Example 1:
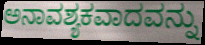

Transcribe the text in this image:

ಅನಾವಶ್ಯಕವಾದವನ್ನು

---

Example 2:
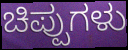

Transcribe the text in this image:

ಚಿಪ್ಪುಗಳು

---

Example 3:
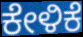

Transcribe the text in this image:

ಕೇಳಿಕೆ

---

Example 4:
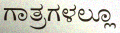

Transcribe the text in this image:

ಗಾತ್ರಗಳಲ್ಲೂ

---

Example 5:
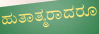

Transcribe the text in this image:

ಹುತಾತ್ಮರಾದರೂ